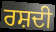
ਰਸ਼ਦੀ